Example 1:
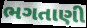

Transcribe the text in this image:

ભગતાણી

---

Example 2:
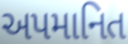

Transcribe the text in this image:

અપમાનિત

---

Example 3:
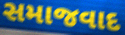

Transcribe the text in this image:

સમાજવાદ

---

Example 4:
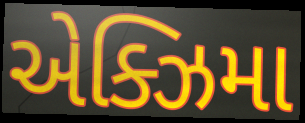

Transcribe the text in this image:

એક્ઝિમા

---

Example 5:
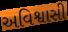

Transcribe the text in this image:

અવિશ્વાસી